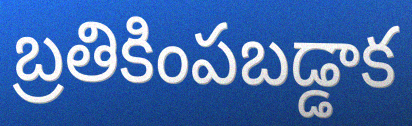
బ్రతికింపబడ్డాక